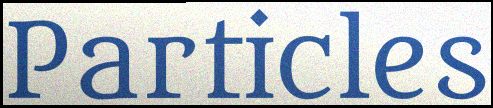
Particles